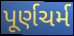
પૂર્ણચર્મ